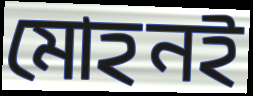
মোহনই